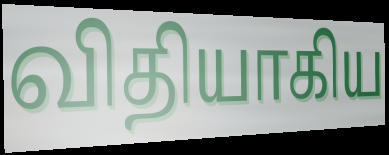
விதியாகிய